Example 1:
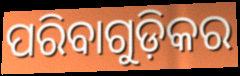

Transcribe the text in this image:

ପରିବାଗୁଡ଼ିକର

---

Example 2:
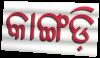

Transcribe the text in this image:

କାଙ୍ଗଡ଼ି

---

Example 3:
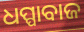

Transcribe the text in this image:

ଧପ୍ପାବାଜ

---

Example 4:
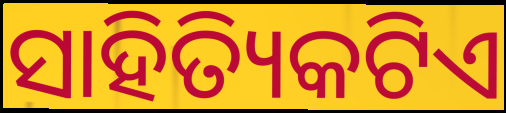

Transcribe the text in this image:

ସାହିତ୍ୟିକଟିଏ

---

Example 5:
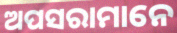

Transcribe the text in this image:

ଅପସରାମାନେ